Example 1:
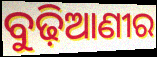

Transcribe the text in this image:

ବୁଢ଼ିଆଣୀର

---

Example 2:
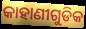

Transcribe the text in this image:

କାହାଣୀଗୁଡିକ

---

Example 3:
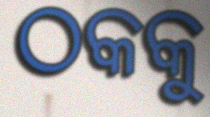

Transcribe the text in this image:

ଠକକୁ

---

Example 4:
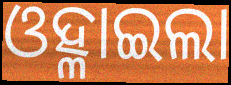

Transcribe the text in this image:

ଓହ୍ଳାଇଲା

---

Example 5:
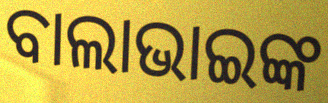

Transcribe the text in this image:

ବାଲାଭାଇଙ୍କ